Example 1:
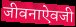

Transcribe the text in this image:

जीवनाऐवजी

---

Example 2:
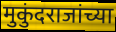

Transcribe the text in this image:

मुकुंदराजांच्या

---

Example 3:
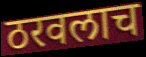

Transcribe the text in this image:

ठरवलाच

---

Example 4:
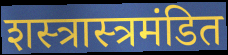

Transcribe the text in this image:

शस्त्रास्त्रमंडित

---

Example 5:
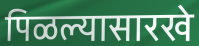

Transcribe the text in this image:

पिळल्यासारखे